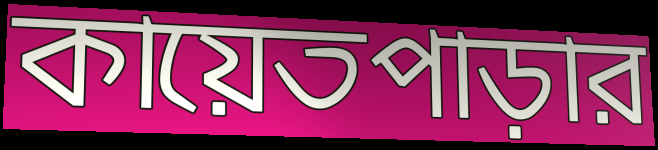
কায়েতপাড়ার